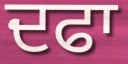
ਦਫਾ